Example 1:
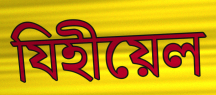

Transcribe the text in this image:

যিহীয়েল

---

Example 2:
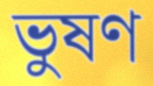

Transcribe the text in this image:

ভুষণ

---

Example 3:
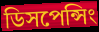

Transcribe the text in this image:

ডিসপেন্সিং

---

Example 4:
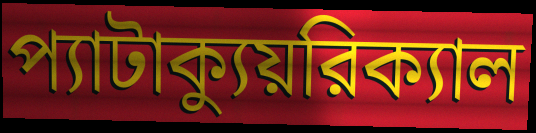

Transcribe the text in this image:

প্যাটাক্যুয়রিক্যাল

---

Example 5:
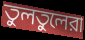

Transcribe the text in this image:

তুলতুলেরা